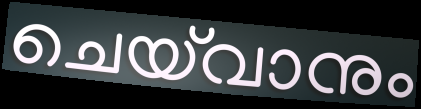
ചെയ്‌വാനും